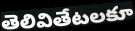
తెలివితేటలకూ